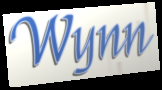
Wynn